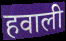
हवाली